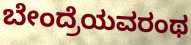
ಬೇಂದ್ರೆಯವರಂಥ